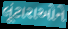
લૂંટારાઓને